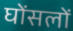
घोंसलों